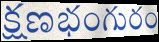
క్షణభంగురం